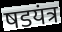
षडयंत्र